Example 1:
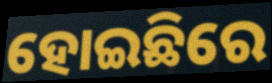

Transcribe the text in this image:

ହୋଇଛିରେ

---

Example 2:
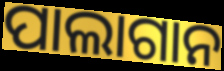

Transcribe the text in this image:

ପାଲାଗାନ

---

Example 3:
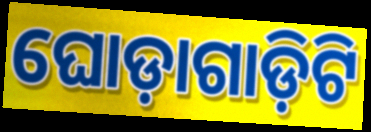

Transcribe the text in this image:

ଘୋଡ଼ାଗାଡ଼ିଟି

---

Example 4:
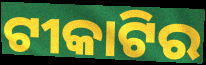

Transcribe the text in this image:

ଟୀକାଟିର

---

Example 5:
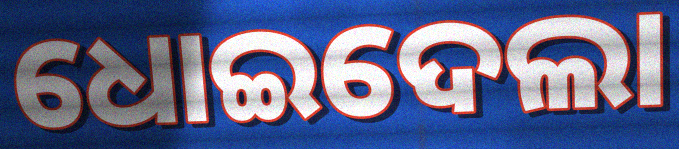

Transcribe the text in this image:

ଧୋଇଦେଲା